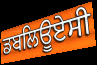
ਡਬਲਿਊਏਸੀ